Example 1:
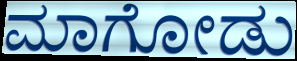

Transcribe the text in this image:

ಮಾಗೋಡು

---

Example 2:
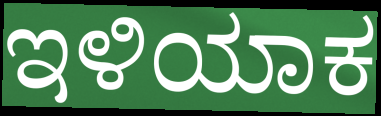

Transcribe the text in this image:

ಇಳಿಯಾಕ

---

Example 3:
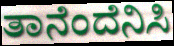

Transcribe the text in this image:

ತಾನೆಂದೆನಿಸಿ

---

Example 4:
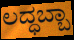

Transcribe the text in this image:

ಲದ್ಧಬ್ಬಾ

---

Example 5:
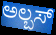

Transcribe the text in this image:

ಅಲ್ಬಸ್